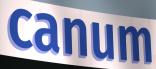
canum